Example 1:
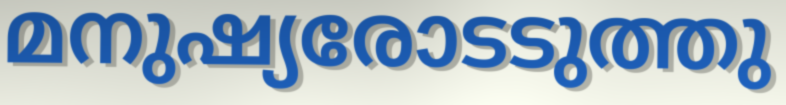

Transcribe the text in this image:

മനുഷ്യരോടടുത്തു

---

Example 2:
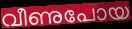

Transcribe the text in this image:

വീണുപോയ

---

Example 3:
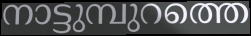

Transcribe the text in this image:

നാട്ടുമ്പുറത്തെ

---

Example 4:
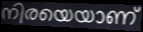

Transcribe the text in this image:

നിരയെയാണ്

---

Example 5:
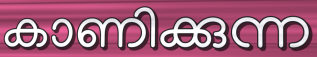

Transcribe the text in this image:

കാണിക്കുന്ന